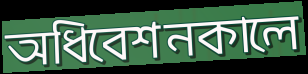
অধিবেশনকালে